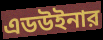
এডউইনার